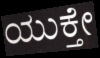
ಯುಕ್ತೇ